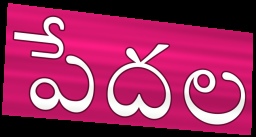
పేదల